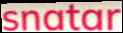
snatar